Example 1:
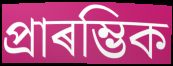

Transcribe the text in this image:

প্ৰাৰম্ভিক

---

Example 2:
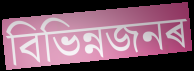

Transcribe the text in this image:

বিভিন্নজনৰ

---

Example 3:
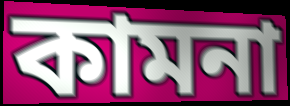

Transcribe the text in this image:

কামনা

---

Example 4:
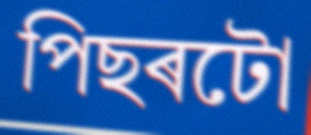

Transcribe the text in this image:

পিছৰটো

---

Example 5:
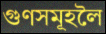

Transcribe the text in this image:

গুণসমূহলৈ